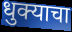
धुक्याचा